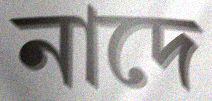
নাদে